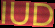
IUD